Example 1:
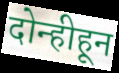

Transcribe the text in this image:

दोन्हीहून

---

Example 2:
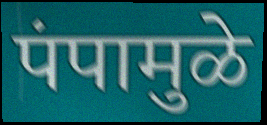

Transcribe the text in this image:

पंपामुळे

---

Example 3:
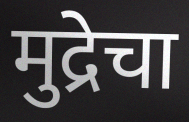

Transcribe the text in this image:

मुद्रेचा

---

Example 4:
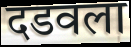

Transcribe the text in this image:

दडवला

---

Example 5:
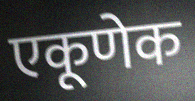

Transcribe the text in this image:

एकूणेक